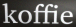
koffie